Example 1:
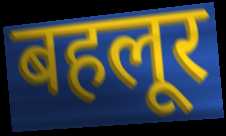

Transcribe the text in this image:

बहलूर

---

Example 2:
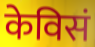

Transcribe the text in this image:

केविसं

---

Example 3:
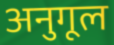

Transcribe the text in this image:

अनुगूल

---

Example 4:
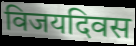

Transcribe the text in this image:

विजयदिवस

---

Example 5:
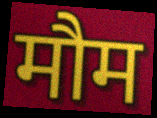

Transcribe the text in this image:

मौम